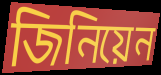
জিনিয়েন